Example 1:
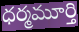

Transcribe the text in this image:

ధర్మమూర్తి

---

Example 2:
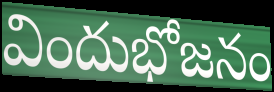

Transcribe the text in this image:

విందుభోజనం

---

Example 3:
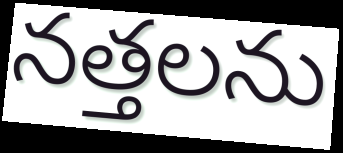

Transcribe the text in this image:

నత్తలను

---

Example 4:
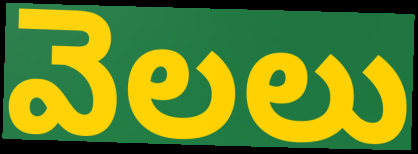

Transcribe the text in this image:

వెలలు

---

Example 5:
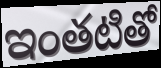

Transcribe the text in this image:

ఇంతటితో